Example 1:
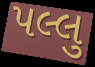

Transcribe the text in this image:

પલ્લુ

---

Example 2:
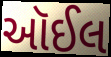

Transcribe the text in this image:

ઑઈલ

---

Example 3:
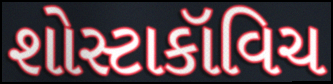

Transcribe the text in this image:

શોસ્ટાકૉવિચ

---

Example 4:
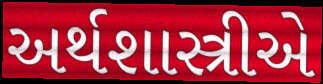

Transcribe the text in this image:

અર્થશાસ્ત્રીએ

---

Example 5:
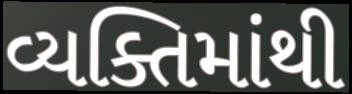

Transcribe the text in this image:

વ્યક્તિમાંથી